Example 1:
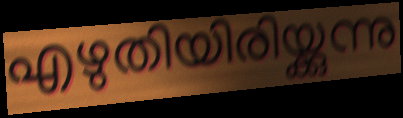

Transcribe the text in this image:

എഴുതിയിരിയ്ക്കുന്നു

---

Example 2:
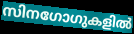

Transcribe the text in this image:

സിനഗോഗുകളിൽ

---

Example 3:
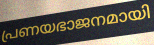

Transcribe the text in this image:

പ്രണയഭാജനമായി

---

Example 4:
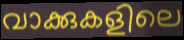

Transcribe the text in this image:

വാക്കുകളിലെ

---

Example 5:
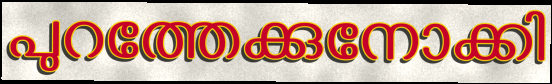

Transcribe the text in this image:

പുറത്തേക്കുനോക്കി